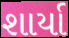
શાર્યા